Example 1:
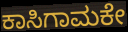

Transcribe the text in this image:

ಕಾಸಿಗಾಮಕೇ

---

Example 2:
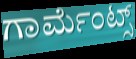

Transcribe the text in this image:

ಗಾರ್ಮೆಂಟ್ಸ್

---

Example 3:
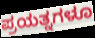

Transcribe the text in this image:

ಪ್ರಯತ್ನಗಳೂ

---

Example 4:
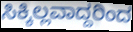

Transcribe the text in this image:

ಸಿಕ್ಕಿಲ್ಲವಾದ್ದರಿಂದ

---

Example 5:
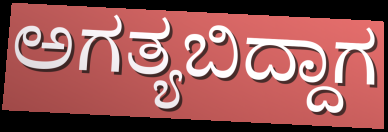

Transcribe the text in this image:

ಅಗತ್ಯಬಿದ್ದಾಗ